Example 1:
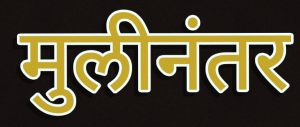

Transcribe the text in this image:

मुलीनंतर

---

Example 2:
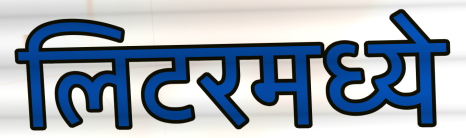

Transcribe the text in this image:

लिटरमध्ये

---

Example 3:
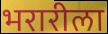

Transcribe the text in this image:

भरारीला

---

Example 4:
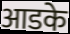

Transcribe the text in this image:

आडके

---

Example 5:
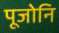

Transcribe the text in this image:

पूजोनि